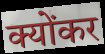
क्योंकर